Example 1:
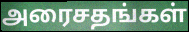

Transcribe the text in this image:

அரைசதங்கள்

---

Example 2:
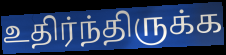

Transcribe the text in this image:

உதிர்ந்திருக்க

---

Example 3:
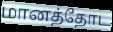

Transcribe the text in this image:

மானத்தோட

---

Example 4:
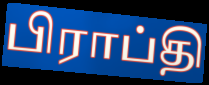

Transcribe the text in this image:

பிராப்தி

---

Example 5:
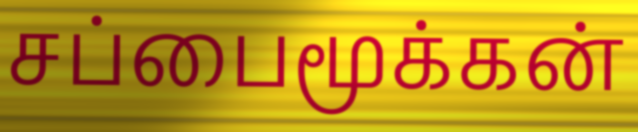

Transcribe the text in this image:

சப்பைமூக்கன்